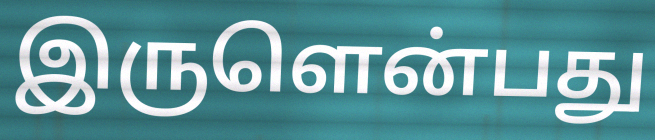
இருளென்பது